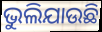
ଭୁଲିଯାଉଛି